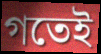
গতেই